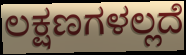
ಲಕ್ಷಣಗಳಲ್ಲದೆ